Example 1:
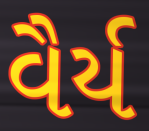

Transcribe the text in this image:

વૈર્ય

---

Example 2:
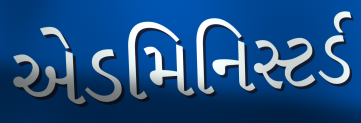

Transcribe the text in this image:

એડમિનિસ્ટર્ડ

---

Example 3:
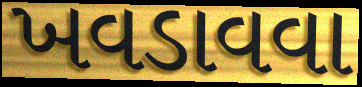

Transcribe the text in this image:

ખવડાવવા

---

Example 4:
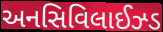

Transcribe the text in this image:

અનસિવિલાઈઝ્ડ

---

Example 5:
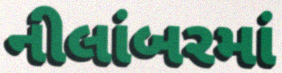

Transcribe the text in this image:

નીલાંબરમાં